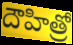
దౌహిత్రో